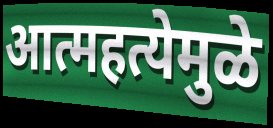
आत्महत्येमुळे